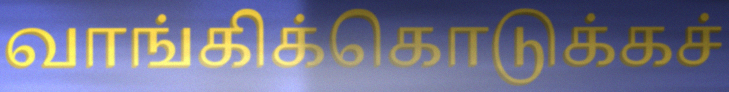
வாங்கிக்கொடுக்கச்